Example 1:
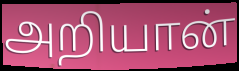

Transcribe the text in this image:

அறியான்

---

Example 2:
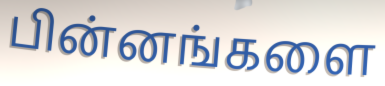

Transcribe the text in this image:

பின்னங்களை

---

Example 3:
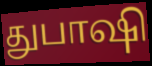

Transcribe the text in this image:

துபாஷி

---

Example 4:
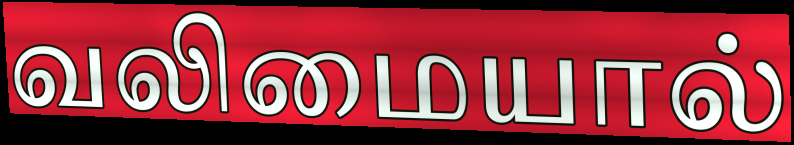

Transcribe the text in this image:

வலிமையால்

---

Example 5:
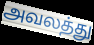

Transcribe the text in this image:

அவலத்து